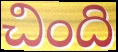
చింది